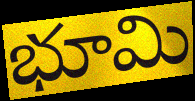
భూమి